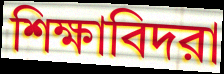
শিক্ষাবিদরা